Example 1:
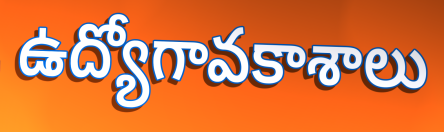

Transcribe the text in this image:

ఉద్యోగావకాశాలు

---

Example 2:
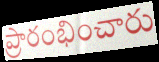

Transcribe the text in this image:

ప్రారంభించారు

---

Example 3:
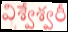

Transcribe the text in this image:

విశ్వేశ్వరీ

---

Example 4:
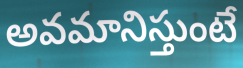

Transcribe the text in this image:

అవమానిస్తుంటే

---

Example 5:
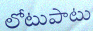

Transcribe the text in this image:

లోటుపాటు